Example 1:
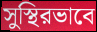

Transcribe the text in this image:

সুস্থিরভাবে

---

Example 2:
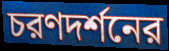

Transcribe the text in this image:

চরণদর্শনের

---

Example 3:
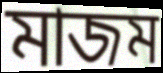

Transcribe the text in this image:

মাজম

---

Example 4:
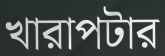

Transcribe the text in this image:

খারাপটার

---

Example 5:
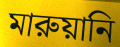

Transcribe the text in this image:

মারুয়ানি